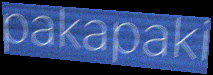
pakapaki